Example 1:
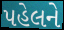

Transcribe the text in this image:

પહેલને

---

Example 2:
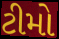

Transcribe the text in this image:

ટીમો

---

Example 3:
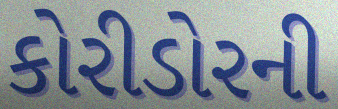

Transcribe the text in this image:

કોરીડોરની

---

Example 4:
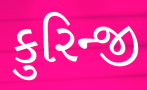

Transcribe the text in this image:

કુરિન્જી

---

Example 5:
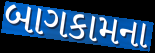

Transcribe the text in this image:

બાગકામના